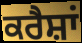
ਕਰੈਸ਼ਾਂ